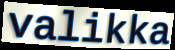
valikka